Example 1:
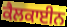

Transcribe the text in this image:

ਕੈਲਕਾਈਨ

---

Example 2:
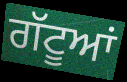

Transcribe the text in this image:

ਗੱਟੂਆਂ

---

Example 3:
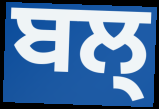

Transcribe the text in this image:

ਬਲ੍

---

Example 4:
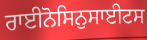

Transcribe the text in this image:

ਰਾਈਨੋਸਿਨੁਸਾਈਟਸ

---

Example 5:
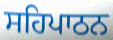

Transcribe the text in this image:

ਸਹਿਪਾਠਨ